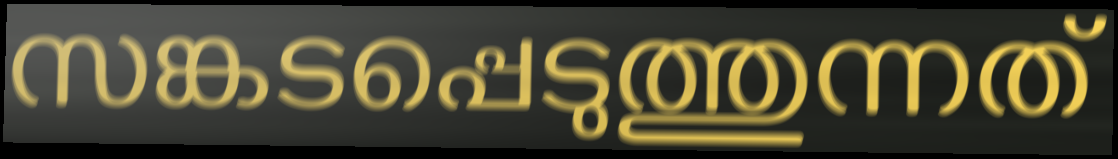
സങ്കടപ്പെടുത്തുന്നത്